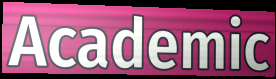
Academic